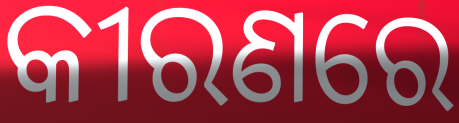
କୀରଣରେ